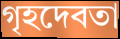
গৃহদেবতা